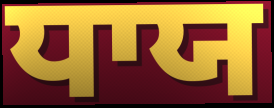
ਧਾਯ